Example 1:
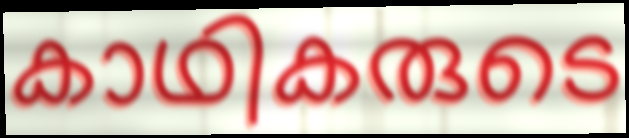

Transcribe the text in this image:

കാഥികരുടെ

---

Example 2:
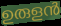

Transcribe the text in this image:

ഉരുളൻ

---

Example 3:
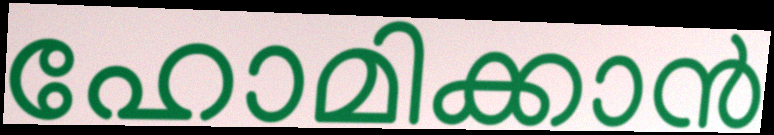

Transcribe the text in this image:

ഹോമിക്കാൻ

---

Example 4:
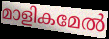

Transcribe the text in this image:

മാളികമേൽ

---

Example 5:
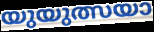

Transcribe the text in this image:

യുയുത്സയാ